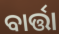
ବାର୍ତ୍ତା